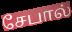
சேபால்